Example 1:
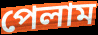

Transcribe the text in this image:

পেলাম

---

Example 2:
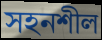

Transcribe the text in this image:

সহনশীল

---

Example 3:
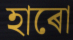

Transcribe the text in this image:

হাৰো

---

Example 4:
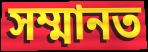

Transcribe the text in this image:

সম্মানত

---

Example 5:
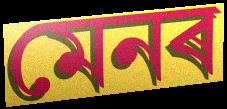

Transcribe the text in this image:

মেনৰ